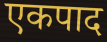
एकपाद